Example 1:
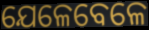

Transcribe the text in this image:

ଯେଳେବେଳେ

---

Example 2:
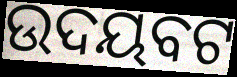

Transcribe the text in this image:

ଉଦୟବଟ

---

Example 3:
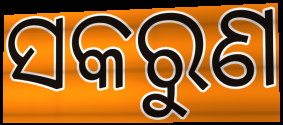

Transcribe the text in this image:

ସକରୁଣ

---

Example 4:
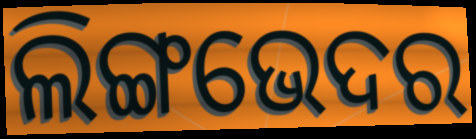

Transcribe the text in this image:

ଲିଙ୍ଗଭେଦର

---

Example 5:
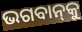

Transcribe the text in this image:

ଭଗବାନ୍‌କୁ